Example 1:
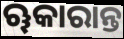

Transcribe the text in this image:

ୠକାରାନ୍ତ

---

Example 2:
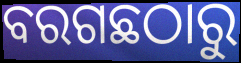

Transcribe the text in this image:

ବରଗଛଠାରୁ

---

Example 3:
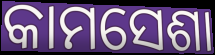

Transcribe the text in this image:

କାମସେଶା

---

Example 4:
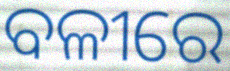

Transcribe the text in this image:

ବଳୀରେ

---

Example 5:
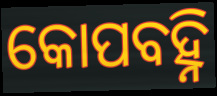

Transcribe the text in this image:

କୋପବହ୍ନି